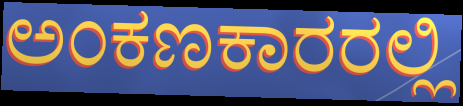
ಅಂಕಣಕಾರರಲ್ಲಿ